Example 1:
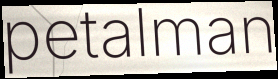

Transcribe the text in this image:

petalman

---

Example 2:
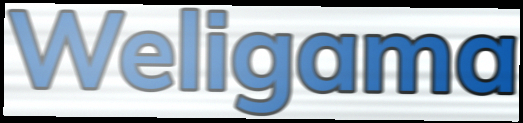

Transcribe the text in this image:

Weligama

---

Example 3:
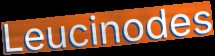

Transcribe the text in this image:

Leucinodes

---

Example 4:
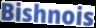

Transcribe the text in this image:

Bishnois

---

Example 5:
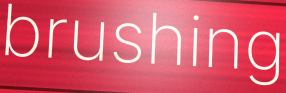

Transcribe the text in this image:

brushing